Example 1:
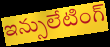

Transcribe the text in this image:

ఇన్సులేటింగ్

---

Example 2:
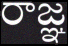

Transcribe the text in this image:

రాజ్ఞ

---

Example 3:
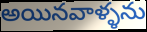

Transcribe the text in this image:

అయినవాళ్ళను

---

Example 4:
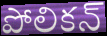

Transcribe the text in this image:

పోలికన్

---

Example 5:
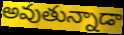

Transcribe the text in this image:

అవుతున్నాడా